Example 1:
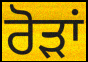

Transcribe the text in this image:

ਰੋੜਾਂ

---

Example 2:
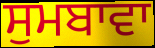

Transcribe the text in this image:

ਸੁਮਬਾਵਾ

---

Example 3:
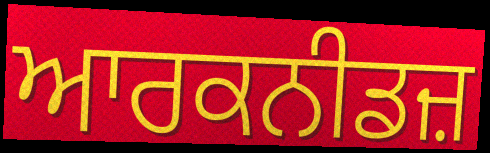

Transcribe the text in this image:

ਆਰਕਨੀਡਜ਼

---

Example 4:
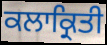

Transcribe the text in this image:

ਕਲਾਕ੍ਰਿਤੀ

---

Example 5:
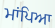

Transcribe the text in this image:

ਮਾਂਪਿਆ